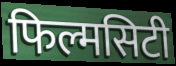
फिल्मसिटी